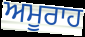
ਅਮੂਰਾਹ